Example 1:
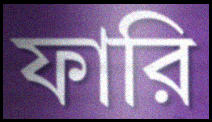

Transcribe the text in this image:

ফারি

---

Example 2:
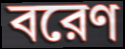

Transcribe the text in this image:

বরেণ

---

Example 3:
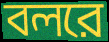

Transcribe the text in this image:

বলরে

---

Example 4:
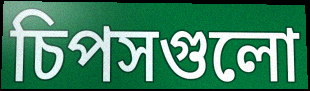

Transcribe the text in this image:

চিপসগুলো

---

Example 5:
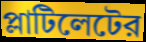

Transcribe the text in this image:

প্লাটিলেটের